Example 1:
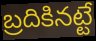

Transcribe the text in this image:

బ్రదికినట్టే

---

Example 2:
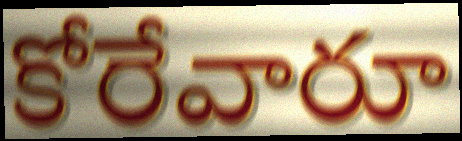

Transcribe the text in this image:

కోరేవారూ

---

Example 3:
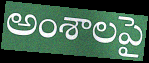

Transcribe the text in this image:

అంశాలపై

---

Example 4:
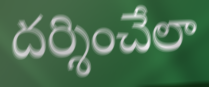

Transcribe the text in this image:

దర్శించేలా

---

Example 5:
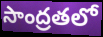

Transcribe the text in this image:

సాంద్రతలో